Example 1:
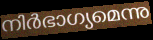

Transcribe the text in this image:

നിർഭാഗ്യമെന്നു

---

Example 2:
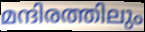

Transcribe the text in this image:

മന്ദിരത്തിലും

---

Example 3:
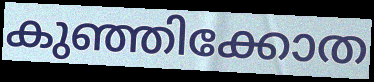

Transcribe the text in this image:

കുഞ്ഞിക്കോത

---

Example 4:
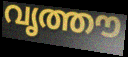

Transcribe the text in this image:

വൃത്തൗ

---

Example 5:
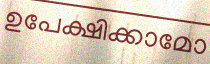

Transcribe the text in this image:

ഉപേക്ഷിക്കാമോ